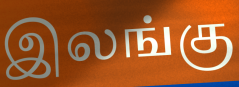
இலங்கு